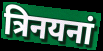
त्रिनयनां